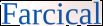
Farcical